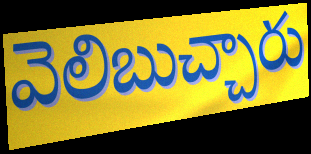
వెలిబుచ్చారు